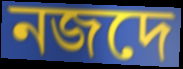
নজদে